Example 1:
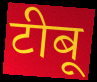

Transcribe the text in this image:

टीबू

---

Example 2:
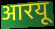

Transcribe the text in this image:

आरयू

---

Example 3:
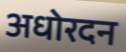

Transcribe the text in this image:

अधोरदन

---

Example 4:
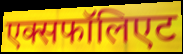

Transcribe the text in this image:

एक्सफॉलिएट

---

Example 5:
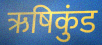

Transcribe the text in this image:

ऋषिकुंड